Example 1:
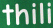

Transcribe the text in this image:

thili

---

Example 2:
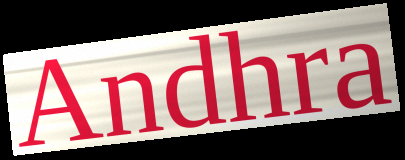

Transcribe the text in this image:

Andhra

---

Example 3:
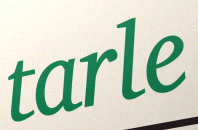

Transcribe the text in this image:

tarle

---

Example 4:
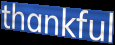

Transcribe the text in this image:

thankful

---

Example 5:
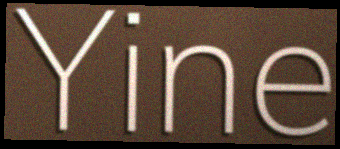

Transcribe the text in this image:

Yine